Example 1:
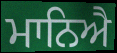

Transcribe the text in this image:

ਮਾਨਿਐ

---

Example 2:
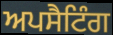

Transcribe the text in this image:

ਅਪਸੈਟਿੰਗ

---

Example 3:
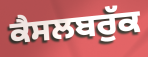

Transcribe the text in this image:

ਕੈਸਲਬਰੁੱਕ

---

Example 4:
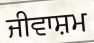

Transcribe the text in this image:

ਜੀਵਾਸ਼ਮ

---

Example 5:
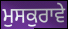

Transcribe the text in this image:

ਮੁਸਕੁਰਾਵੇ